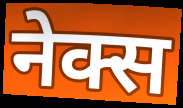
नेक्स